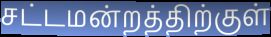
சட்டமன்றத்திற்குள்